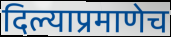
दिल्याप्रमाणेच